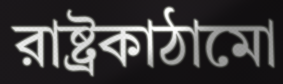
রাষ্ট্রকাঠামো